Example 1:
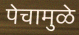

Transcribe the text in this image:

पेचामुळे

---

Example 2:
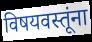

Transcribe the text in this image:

विषयवस्तूंना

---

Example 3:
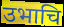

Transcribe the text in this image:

उभाचि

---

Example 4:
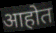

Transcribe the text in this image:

आहोत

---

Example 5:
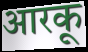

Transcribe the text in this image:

आरकू